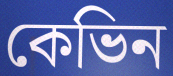
কেভিন